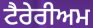
ਟੈਰੇਰੀਅਮ